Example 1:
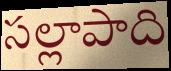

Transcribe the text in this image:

సల్లాపాది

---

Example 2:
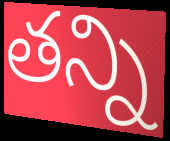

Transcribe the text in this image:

తన్ని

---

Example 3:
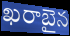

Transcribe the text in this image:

ఖరాబైన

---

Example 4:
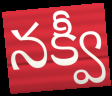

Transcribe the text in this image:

నక్వీ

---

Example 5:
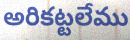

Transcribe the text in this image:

అరికట్టలేము